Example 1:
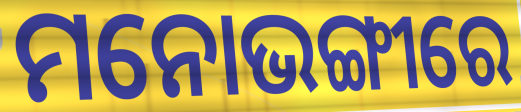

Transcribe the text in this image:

ମନୋଭଙ୍ଗୀରେ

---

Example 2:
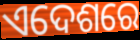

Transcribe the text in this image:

ଏଦେଶରେ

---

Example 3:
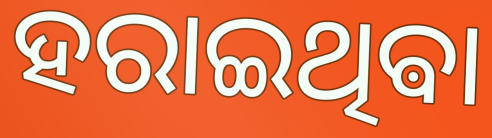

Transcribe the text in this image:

ହରାଇଥିଵା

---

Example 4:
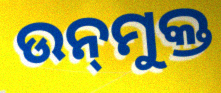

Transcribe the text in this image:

ଉନ୍‍ମୁକ୍ତ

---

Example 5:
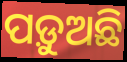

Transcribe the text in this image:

ପଡ଼ୁଅଛି